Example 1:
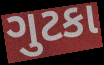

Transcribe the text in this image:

ગુટકા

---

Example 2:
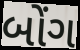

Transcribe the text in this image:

બોંગ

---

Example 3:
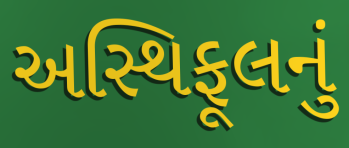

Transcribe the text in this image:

અસ્થિફૂલનું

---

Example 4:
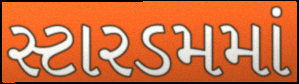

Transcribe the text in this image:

સ્ટારડમમાં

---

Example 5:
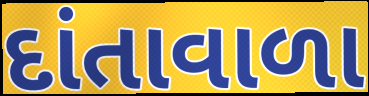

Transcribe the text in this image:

દાંતાવાળા